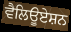
ਵੈਲਿਊਏਸ਼ਨ